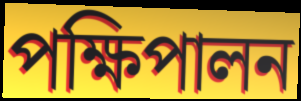
পক্ষিপালন